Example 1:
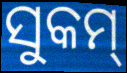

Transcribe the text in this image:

ସୁକମ୍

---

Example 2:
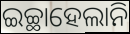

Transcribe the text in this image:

ଇଚ୍ଛାହେଲାନି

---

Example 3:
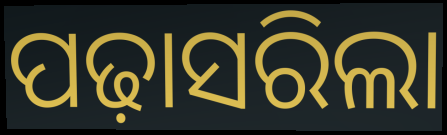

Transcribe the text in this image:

ପଢ଼ାସରିଲା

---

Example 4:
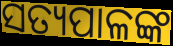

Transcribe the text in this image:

ସତ୍ୟପାଳଙ୍କ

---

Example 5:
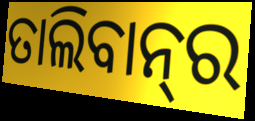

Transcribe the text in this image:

ତାଲିବାନ୍‌ର